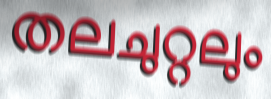
തലചുറ്റലും